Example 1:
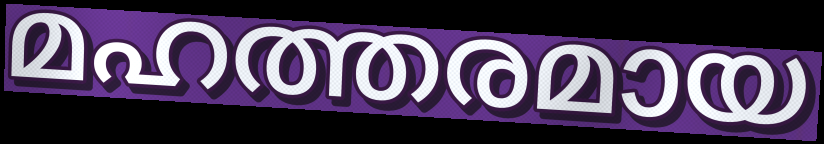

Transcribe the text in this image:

മഹത്തരമായ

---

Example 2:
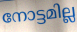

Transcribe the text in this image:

നോട്ടമില്ല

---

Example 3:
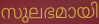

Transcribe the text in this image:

സുലഭമായി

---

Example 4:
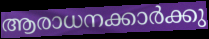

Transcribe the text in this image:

ആരാധനക്കാർക്കു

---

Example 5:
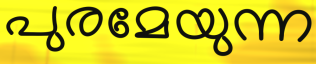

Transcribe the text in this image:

പുരമേയുന്ന